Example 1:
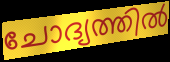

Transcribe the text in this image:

ചോദ്യത്തിൽ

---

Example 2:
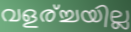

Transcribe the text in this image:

വളര്ച്ചയില്ല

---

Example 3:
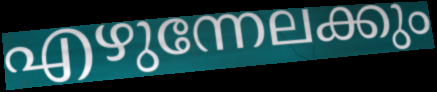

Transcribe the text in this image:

എഴുന്നേലക്കും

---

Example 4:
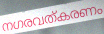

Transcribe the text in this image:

നഗരവത്കരണം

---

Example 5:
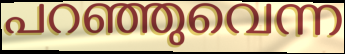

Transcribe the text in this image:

പറഞ്ഞുവെന്ന